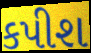
કપીશ